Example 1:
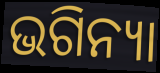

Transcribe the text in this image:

ଭଗିନ୍ୟା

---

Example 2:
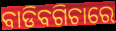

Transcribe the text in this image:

ବାଡିବଗିଚାରେ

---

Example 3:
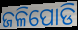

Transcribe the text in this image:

ଜଳିପୋଡି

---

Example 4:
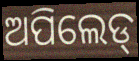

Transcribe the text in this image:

ଅପିଲେଡ୍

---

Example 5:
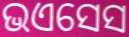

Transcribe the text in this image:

ଭଏସେସ